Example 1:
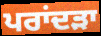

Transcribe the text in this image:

ਪਰਾਂਦੜਾ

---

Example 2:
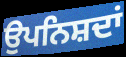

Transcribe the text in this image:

ਉਪਨਿਸ਼ਦਾਂ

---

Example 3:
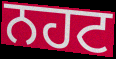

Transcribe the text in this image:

ਨਹਟ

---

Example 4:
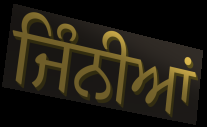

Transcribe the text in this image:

ਜਿੰਨੀਆਂ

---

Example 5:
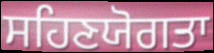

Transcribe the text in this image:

ਸਹਿਣਯੋਗਤਾ